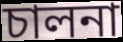
চালনা